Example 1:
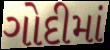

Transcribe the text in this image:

ગોદીમાં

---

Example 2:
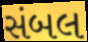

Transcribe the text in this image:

સંબલ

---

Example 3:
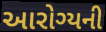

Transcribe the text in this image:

આરોગ્યની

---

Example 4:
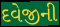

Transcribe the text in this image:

દવેજીની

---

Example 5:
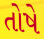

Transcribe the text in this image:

તોષે